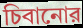
চিবানোর